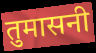
तुमासनी